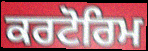
ਕਰਟੋਰਿਮ